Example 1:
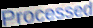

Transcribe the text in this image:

Processed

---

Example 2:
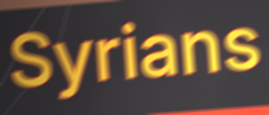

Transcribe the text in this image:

Syrians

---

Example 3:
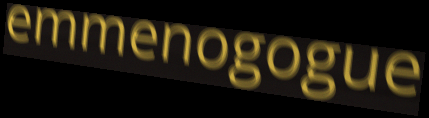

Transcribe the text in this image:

emmenogogue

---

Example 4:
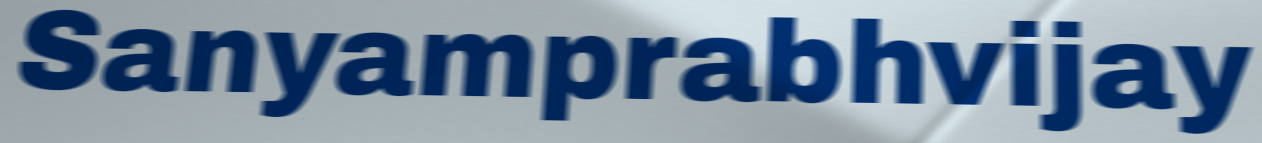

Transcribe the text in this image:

Sanyamprabhvijay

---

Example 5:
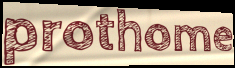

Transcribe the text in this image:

prothome